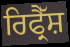
ਰਿਫ੍ਰੈੱਸ਼